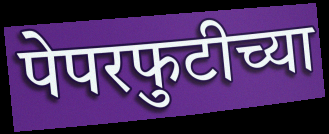
पेपरफुटीच्या